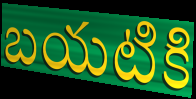
బయటికి